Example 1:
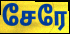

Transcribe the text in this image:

சேரே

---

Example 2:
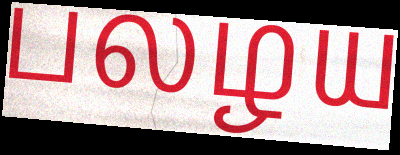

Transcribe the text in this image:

பலழய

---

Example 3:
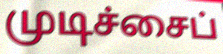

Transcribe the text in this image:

முடிச்சைப்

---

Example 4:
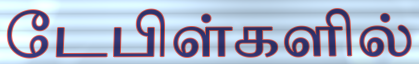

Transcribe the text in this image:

டேபிள்களில்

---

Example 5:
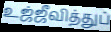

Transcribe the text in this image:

உஜ்ஜீவித்துப்